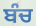
ਬੰਚ